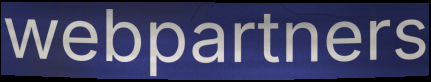
webpartners